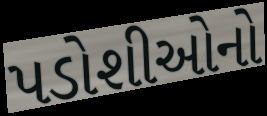
પડોશીઓનો